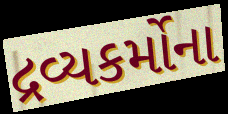
દ્રવ્યકર્મોના